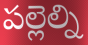
పల్లెల్ని